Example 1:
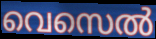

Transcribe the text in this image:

വെസെൽ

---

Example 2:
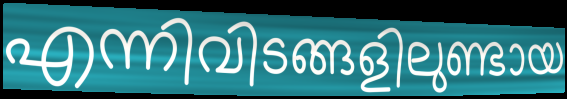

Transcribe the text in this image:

എന്നിവിടങ്ങളിലുണ്ടായ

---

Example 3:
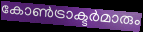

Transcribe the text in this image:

കോൺട്രാക്ടർമാരും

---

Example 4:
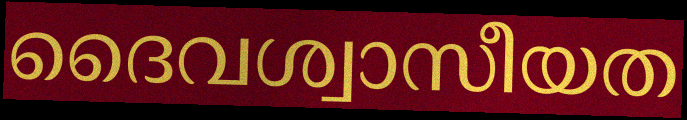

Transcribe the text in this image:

ദൈവശ്വാസീയത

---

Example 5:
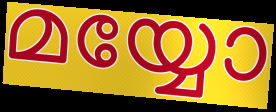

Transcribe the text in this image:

മയ്യോ